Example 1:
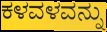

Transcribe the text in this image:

ಕಳವಳವನ್ನು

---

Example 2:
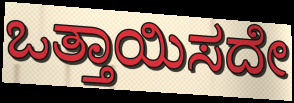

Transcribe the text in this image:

ಒತ್ತಾಯಿಸದೇ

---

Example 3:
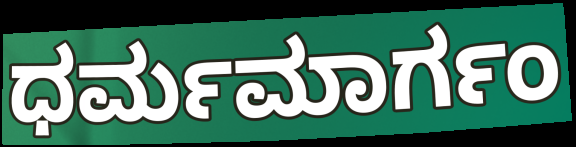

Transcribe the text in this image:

ಧರ್ಮಮಾರ್ಗಂ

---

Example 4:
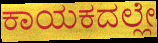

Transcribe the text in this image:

ಕಾಯಕದಲ್ಲೇ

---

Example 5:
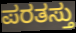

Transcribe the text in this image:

ಪರತಸ್ತು